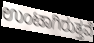
ಉಂಟಾಗಿರುತ್ತವೆ